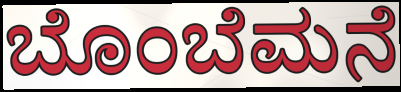
ಬೊಂಬೆಮನೆ